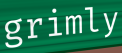
grimly